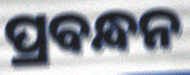
ପ୍ରବନ୍ଧନ